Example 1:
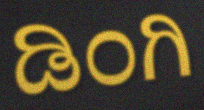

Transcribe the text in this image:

ಡಿಂಗಿ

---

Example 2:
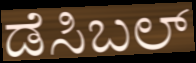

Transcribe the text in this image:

ಡೆಸಿಬಲ್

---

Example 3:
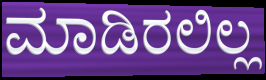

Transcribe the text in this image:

ಮಾಡಿರಲಿಲ್ಲ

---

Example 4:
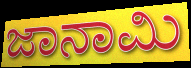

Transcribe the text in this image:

ಜಾನಾಮಿ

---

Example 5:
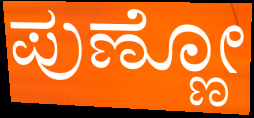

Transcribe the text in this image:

ಪುಣ್ಣೋ